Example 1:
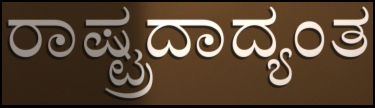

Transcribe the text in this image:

ರಾಷ್ಟ್ರದಾದ್ಯಂತ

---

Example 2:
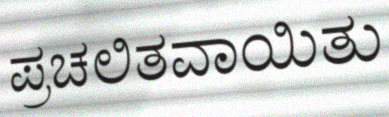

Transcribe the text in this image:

ಪ್ರಚಲಿತವಾಯಿತು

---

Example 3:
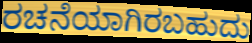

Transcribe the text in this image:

ರಚನೆಯಾಗಿರಬಹುದು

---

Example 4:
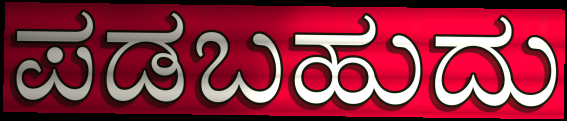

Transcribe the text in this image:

ಪಡಬಹುದು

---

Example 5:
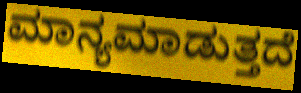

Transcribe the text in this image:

ಮಾನ್ಯಮಾಡುತ್ತದೆ